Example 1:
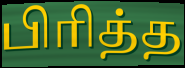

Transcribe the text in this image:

பிரித்த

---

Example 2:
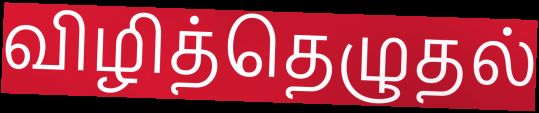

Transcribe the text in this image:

விழித்தெழுதல்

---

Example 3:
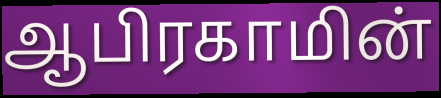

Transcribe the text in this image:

ஆபிரகாமின்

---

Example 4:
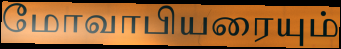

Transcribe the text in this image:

மோவாபியரையும்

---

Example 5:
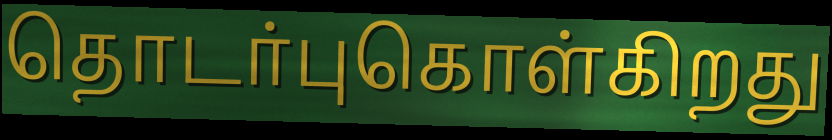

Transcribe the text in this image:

தொடர்புகொள்கிறது